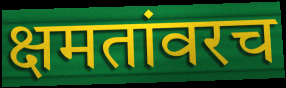
क्षमतांवरच